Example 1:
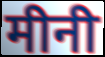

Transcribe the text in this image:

मीनी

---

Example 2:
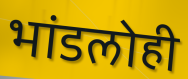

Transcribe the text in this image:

भांडलोही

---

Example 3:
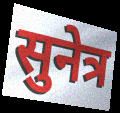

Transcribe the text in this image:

सुनेत्र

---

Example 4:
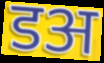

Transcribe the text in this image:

डअ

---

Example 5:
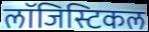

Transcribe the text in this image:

लॉजिस्टिकल